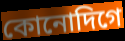
কোনোদিগে